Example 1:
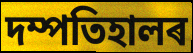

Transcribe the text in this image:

দম্পতিহালৰ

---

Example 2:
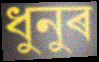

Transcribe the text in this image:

ধুনুৰ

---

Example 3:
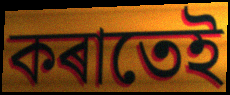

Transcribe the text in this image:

কৰাতেই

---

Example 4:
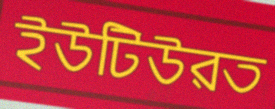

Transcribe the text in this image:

ইউটিউৱত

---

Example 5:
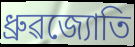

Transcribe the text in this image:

ধ্ৰুৱজ্যোতি